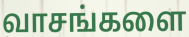
வாசங்களை